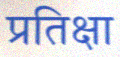
प्रतिक्षा